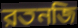
রতনজি